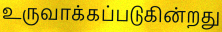
உருவாக்கப்படுகின்றது